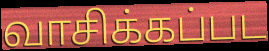
வாசிக்கப்பட